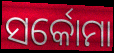
ସର୍କୋମା